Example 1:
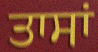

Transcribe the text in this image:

ਤਾਸਾਂ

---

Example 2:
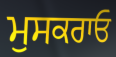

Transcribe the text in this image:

ਮੁਸਕਰਾਓ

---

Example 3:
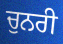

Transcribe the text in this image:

ਚੁਨਰੀ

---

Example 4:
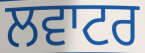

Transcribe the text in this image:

ਲਵਾਟਰ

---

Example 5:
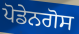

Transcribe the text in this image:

ਪੋਡੇਨਗੋਸ